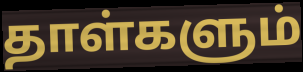
தாள்களும்